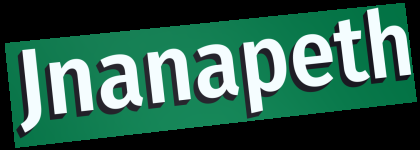
Jnanapeth